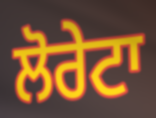
ਲੋਰੇਟਾ